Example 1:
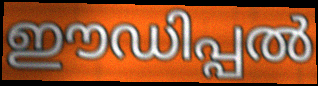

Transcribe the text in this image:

ഈഡിപ്പൽ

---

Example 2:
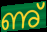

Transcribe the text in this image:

ണു്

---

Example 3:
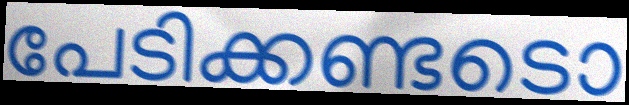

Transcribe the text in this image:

പേടിക്കണ്ടടൊ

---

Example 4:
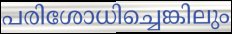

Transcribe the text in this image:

പരിശോധിച്ചെങ്കിലും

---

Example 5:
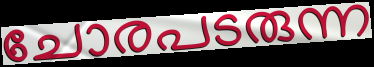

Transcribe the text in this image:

ചോരപടരുന്ന